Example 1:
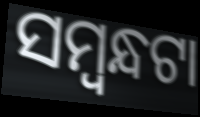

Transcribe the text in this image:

ସମ୍ବନ୍ଧଟା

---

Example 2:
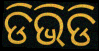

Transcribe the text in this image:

ଡିଭିଡି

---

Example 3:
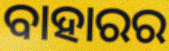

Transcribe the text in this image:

ବାହାରର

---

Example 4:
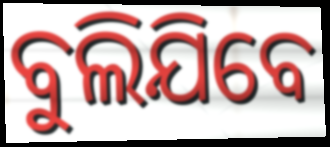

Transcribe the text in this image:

ବୁଲିଯିବେ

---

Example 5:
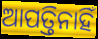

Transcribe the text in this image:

ଆପତ୍ତିନାହିଁ